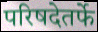
परिषदेतर्फे